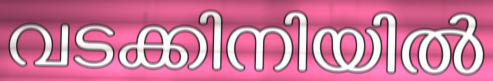
വടക്കിനിയിൽ